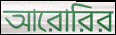
আরোরির